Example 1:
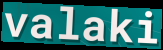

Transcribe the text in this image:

valaki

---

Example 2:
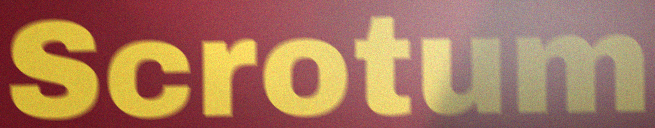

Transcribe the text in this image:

Scrotum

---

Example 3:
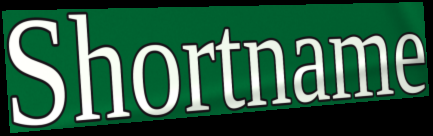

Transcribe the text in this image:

Shortname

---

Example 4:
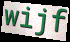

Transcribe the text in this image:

wijf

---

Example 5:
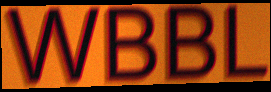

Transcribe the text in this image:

WBBL